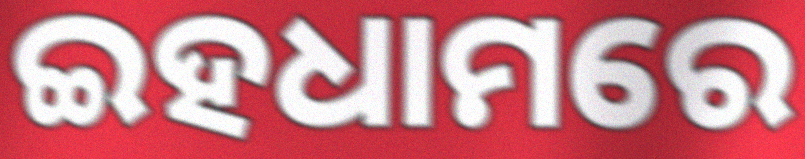
ଇହଧାମରେ